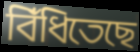
বিঁধিতেছে